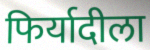
फिर्यादीला